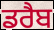
ਡਰੈਬ